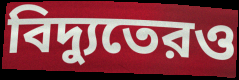
বিদ্যুতেরও